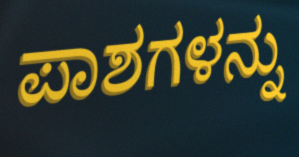
ಪಾಶಗಳನ್ನು